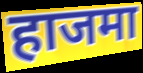
हाजमा